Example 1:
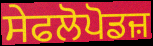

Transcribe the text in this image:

ਸੇਫਲੋਪੋਡਜ਼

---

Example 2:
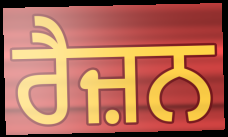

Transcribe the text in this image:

ਰੈਜ਼ਨ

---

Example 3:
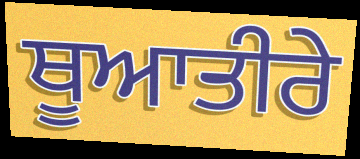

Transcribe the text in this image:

ਥੂਆਤੀਰੇ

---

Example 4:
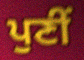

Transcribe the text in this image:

ਪੁਣੀਂ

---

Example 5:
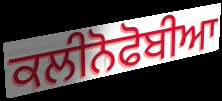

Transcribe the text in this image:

ਕਲੀਨੋਫੋਬੀਆ